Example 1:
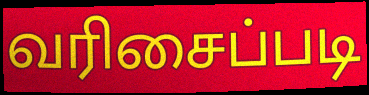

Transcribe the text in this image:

வரிசைப்படி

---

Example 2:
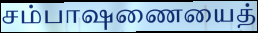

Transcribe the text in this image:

சம்பாஷணையைத்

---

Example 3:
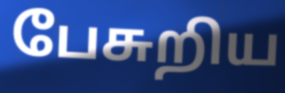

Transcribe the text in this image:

பேசுறிய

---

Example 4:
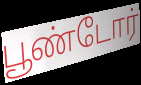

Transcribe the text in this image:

பூண்டோர்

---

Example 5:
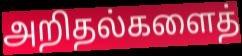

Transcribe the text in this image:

அறிதல்களைத்